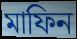
মাফিন